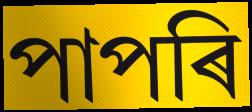
পাপৰি